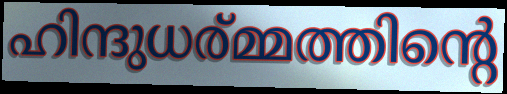
ഹിന്ദുധര്മ്മത്തിന്റെ